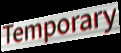
Temporary